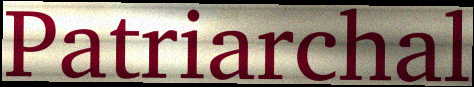
Patriarchal